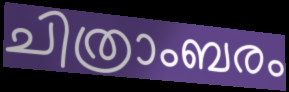
ചിത്രാംബരം